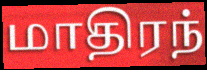
மாதிரந்